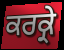
ਕਰਕ੍ਰੇ